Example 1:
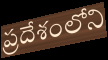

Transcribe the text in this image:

ప్రదేశంలోని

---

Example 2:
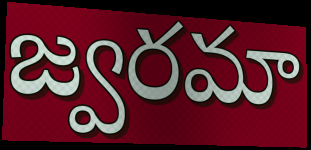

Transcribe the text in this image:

జ్వరమా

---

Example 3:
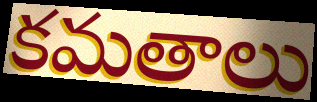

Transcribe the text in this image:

కమతాలు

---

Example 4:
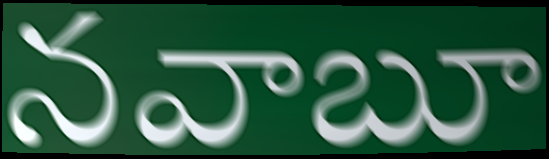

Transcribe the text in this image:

నవాబూ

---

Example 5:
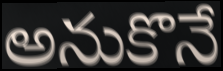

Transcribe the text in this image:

అనుకొనే